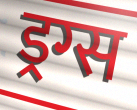
ड्रग्‍स